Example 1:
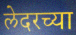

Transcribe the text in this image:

लेदरच्या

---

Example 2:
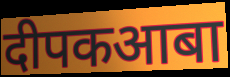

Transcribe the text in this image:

दीपकआबा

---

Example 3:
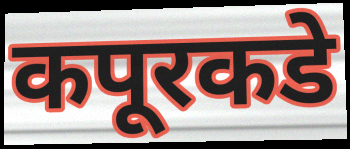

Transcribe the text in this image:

कपूरकडे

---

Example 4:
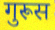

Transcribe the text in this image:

गुरूस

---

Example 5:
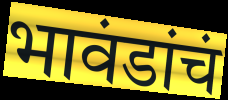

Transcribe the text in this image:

भावंडांचं